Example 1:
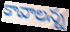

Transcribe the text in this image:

కావాలన్న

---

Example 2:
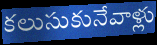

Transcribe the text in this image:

కలుసుకునేవాళ్లు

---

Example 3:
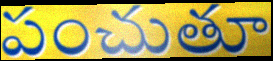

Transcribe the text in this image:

పంచుతూ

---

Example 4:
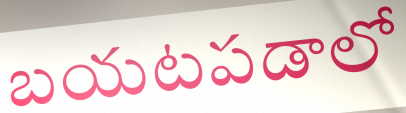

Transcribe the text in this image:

బయటపడాలో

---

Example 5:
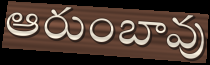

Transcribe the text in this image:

ఆరుంబావు